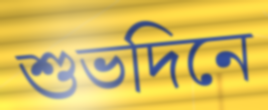
শুভদিনে